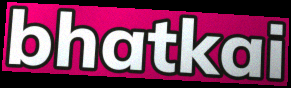
bhatkai